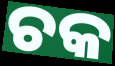
ଚକ